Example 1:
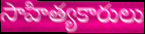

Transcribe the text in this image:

సాహిత్యకారులు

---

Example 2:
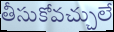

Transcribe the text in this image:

తీసుకోవచ్చులే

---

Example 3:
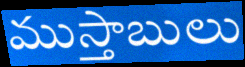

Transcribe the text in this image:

ముస్తాబులు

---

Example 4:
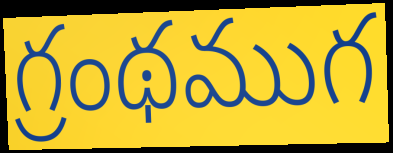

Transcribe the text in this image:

గ్రంథముగ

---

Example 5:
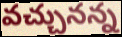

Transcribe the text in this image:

వచ్చునన్న